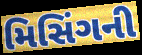
મિસિંગની